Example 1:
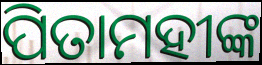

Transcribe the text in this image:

ପିତାମହୀଙ୍କ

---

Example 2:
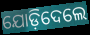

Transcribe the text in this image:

ଯୋଡ଼ିଦେଲେ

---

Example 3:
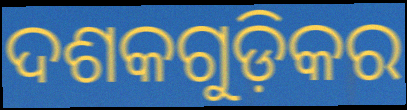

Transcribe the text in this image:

ଦଶକଗୁଡ଼ିକର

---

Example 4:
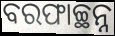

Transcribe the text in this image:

ବରଫାଚ୍ଛନ୍ନ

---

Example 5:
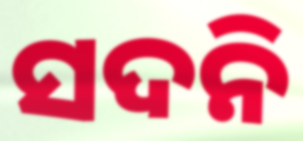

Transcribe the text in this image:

ସଦନି